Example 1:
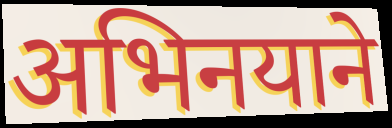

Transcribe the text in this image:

अभिनयाने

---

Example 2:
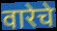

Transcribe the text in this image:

वारेचे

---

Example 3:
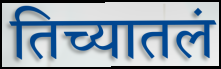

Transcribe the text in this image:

तिच्यातलं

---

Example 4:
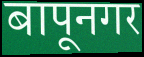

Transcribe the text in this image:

बापूनगर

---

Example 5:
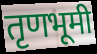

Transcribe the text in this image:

तृणभूमी